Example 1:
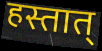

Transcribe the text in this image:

हस्तात्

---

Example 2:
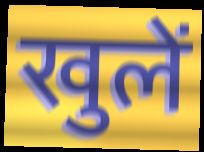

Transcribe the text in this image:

खुलें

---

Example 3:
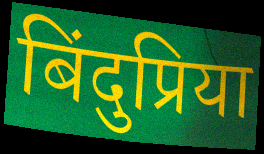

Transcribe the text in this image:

बिंदुप्रिया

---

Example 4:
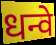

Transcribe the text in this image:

धन्वे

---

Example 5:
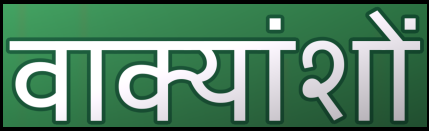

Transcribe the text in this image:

वाक्यांशों